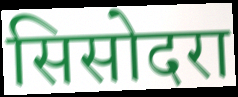
सिसोदरा